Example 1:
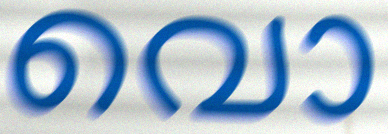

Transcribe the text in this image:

വൊ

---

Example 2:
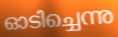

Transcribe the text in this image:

ഓടിച്ചെന്നു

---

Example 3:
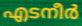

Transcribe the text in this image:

എടനീർ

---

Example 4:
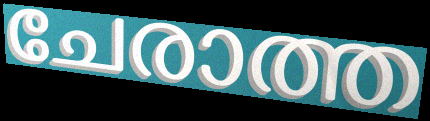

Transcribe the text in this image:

ചേരാത്ത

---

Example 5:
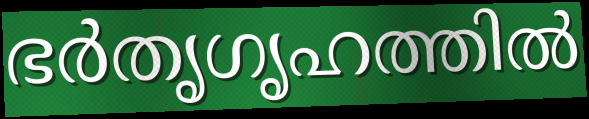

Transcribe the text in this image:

ഭർതൃഗൃഹത്തിൽ